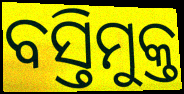
ବସ୍ତିମୁକ୍ତ